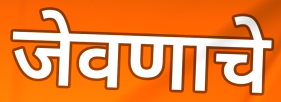
जेवणाचे